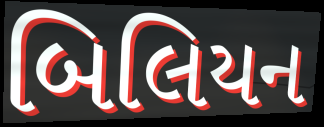
બિલિયન